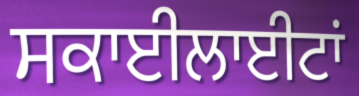
ਸਕਾਈਲਾਈਟਾਂ